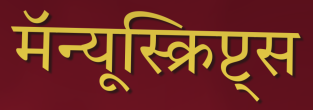
मॅन्यूस्क्रिप्ट्स